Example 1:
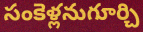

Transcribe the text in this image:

సంకెళ్లనుగూర్చి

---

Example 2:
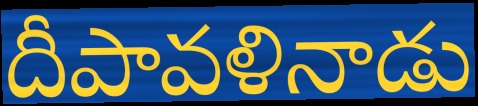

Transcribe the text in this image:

దీపావళినాడు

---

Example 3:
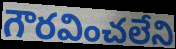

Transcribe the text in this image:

గౌరవించలేని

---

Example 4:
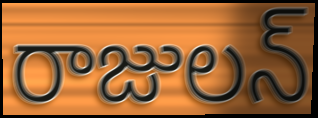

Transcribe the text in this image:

రాజులన్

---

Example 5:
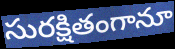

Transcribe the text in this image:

సురక్షితంగానూ